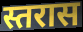
स्तरास